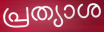
പ്രത്യാശ